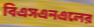
বিএসএনএলের